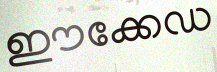
ഈക്കേഡ